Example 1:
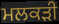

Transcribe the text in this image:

ਮਲਕੜੀ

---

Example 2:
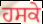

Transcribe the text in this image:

ਹਸਕੇ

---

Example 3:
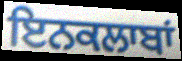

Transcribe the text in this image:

ਇਨਕਲਾਬਾਂ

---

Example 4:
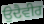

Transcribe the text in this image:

ਉਦੈਵੀਰ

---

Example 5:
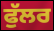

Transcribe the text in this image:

ਫੁੱਲਰ